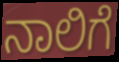
ನಾಲಿಗೆ